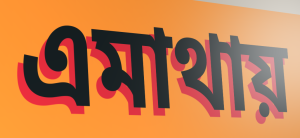
এমাথায়